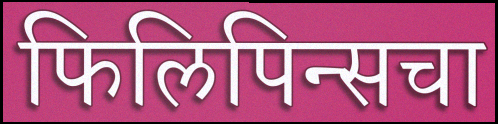
फिलिपिन्सचा